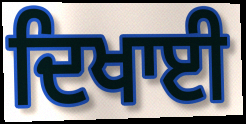
ਦਿਖਾਈ